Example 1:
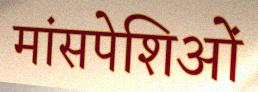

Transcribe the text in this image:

मांसपेशिओं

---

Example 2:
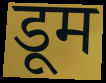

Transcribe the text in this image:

डूम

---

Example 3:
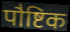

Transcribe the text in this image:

पौष्टिक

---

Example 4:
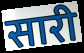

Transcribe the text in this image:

सारी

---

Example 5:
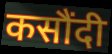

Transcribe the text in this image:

कसौंदी